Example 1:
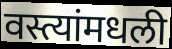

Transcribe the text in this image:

वस्त्यांमधली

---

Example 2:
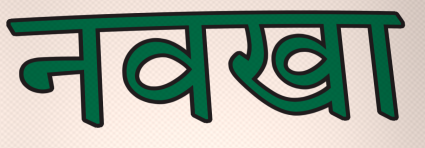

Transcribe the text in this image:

नवखा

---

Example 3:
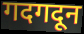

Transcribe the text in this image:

गदगदून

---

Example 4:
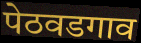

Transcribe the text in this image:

पेठवडगाव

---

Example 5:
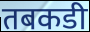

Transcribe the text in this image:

तबकडी